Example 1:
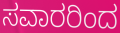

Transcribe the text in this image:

ಸವಾರರಿಂದ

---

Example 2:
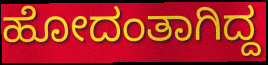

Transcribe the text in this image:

ಹೋದಂತಾಗಿದ್ದ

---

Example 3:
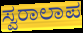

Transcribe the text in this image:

ಸ್ವರಾಲಾಪ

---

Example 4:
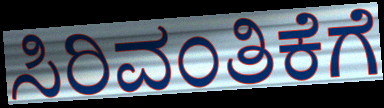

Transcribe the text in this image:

ಸಿರಿವಂತಿಕೆಗೆ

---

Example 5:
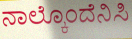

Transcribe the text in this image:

ನಾಲ್ಕೊಂದೆನಿಸಿ